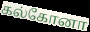
கல்கோனா